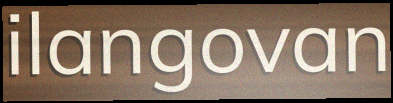
ilangovan